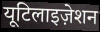
यूटिलाइज़ेशन